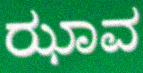
ಝಾವ